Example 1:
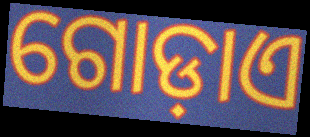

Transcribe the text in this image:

ଗୋଡ଼ାଏ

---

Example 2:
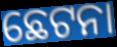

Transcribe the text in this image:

ଛେଟନା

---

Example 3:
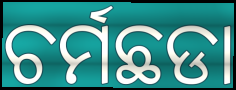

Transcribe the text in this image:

ଚର୍ମଛଡା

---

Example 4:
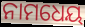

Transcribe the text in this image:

ନାମଧେୟ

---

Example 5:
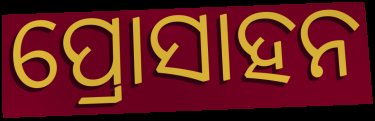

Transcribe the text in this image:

ପ୍ରୋସାହନ